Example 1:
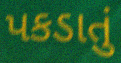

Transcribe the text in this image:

પકડાતું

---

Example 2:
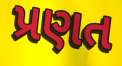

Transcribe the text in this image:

પ્રણત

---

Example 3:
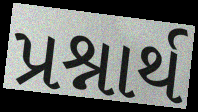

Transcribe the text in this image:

પ્રશ્નાર્થ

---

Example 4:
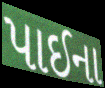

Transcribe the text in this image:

પાઈના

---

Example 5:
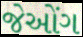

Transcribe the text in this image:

જેઓંગ